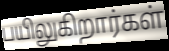
பயிலுகிறார்கள்